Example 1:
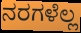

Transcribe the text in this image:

ನರಗಳೆಲ್ಲ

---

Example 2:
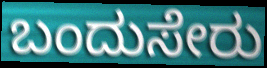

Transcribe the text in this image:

ಬಂದುಸೇರು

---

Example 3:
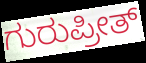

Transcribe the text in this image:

ಗುರುಪ್ರೀತ್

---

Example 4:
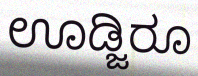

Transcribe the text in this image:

ಊಡ್ಜಿರೂ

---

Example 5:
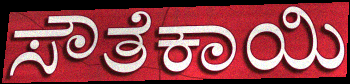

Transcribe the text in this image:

ಸೌತೆಕಾಯಿ